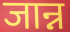
जान्न